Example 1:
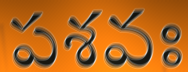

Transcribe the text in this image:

పశవః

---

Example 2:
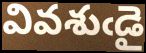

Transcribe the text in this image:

వివశుఁడై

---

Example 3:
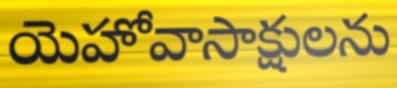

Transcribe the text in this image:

యెహోవాసాక్షులను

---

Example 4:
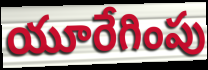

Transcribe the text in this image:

యూరేగింపు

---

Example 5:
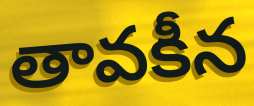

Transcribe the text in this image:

తావకీన